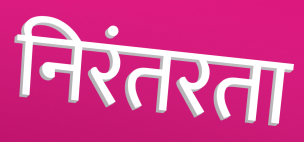
निरंतरता